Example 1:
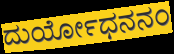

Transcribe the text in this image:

ದುರ್ಯೋಧನನಂ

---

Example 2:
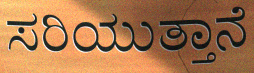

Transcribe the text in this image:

ಸರಿಯುತ್ತಾನೆ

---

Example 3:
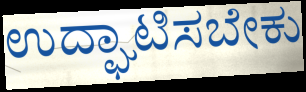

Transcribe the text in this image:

ಉದ್ಘಾಟಿಸಬೇಕು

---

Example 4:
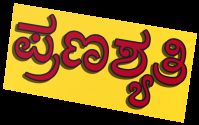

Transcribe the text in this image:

ಪ್ರಣಶ್ಯತಿ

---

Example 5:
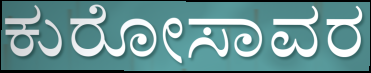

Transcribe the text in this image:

ಕುರೋಸಾವರ